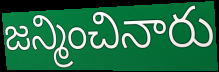
జన్మించినారు